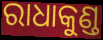
ରାଧାକୁଣ୍ଡ